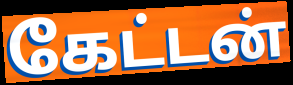
கேட்டன்